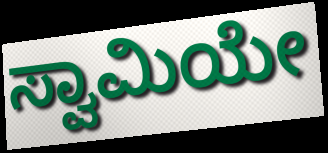
ಸ್ವಾಮಿಯೇ